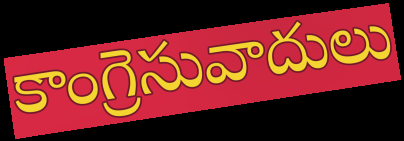
కాంగ్రెసువాదులు